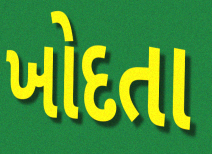
ખોદતા